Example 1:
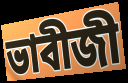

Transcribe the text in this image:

ভাবীজী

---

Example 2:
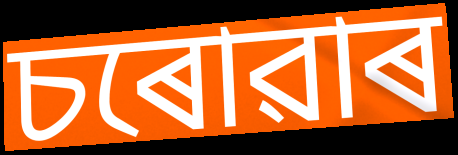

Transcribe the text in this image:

চৰোৱাৰ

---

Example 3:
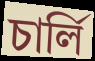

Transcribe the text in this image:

চাৰ্লি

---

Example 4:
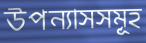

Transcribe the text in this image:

উপন্যাসসমূহ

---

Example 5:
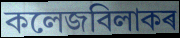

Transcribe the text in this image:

কলেজবিলাকৰ